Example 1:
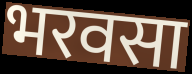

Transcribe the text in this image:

भरवसा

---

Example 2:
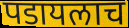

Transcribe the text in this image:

पडायलाच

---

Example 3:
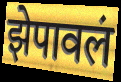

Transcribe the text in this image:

झेपावलं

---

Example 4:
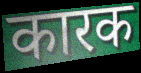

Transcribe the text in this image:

कारक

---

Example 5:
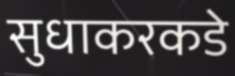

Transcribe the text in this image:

सुधाकरकडे